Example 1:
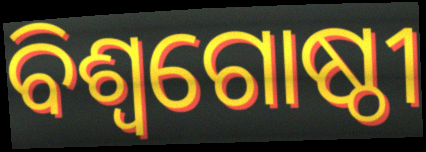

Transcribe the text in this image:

ବିଶ୍ୱଗୋଷ୍ଠୀ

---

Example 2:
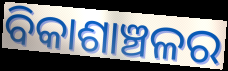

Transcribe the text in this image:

ବିକାଶାଞ୍ଚଳର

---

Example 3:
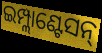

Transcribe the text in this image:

ଇମ୍ପ୍ଲାଣ୍ଟେସନ୍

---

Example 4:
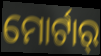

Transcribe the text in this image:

ମୋର୍ଟାର୍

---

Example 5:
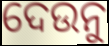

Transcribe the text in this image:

ଦେଉନୁ